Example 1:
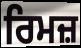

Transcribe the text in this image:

ਰਿਮਜ਼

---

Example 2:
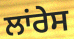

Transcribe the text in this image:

ਲਾਂਰੇਸ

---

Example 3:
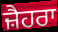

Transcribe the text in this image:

ਜ਼ੈਹਰਾ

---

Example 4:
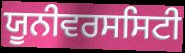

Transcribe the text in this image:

ਯੂਨੀਵਰਸਸਿਟੀ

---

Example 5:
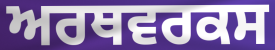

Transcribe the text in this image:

ਅਰਥਵਰਕਸ